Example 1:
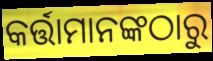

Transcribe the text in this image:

କର୍ତ୍ତାମାନଙ୍କଠାରୁ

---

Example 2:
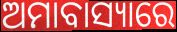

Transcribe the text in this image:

ଅମାବାସ୍ୟାରେ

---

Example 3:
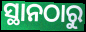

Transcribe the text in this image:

ସ୍ଥାନଠାରୁ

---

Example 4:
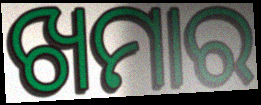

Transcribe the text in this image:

ଖମାର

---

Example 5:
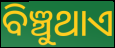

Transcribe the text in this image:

ବିଞ୍ଚୁଥାଏ